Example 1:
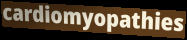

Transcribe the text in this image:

cardiomyopathies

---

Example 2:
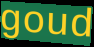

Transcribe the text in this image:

goud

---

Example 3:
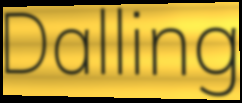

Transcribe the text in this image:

Dalling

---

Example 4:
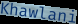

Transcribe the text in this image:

Khawlani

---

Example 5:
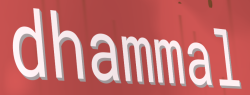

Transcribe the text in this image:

dhammal